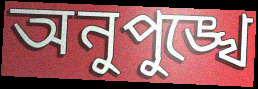
অনুপুঙ্খে